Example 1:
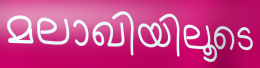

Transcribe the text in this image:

മലാഖിയിലൂടെ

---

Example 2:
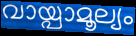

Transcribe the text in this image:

വായ്പാമൂല്യം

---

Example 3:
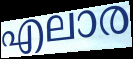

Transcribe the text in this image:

എലാര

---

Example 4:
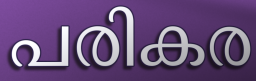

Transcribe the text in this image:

പരികര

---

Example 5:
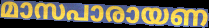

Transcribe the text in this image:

മാസപാരായണ